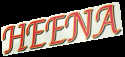
HEENA